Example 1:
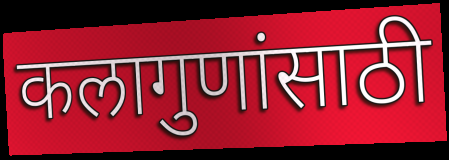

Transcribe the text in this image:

कलागुणांसाठी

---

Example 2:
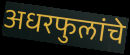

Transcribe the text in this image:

अधरफुलांचे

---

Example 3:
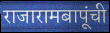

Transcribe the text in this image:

राजारामबापूंची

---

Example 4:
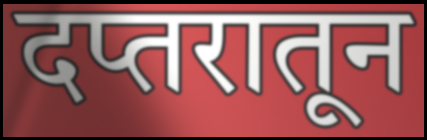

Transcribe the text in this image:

दप्तरातून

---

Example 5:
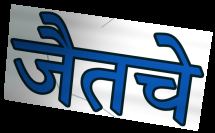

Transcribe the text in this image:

जैतचे